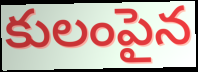
కులంపైన